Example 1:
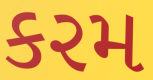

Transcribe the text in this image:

કરમ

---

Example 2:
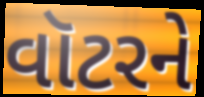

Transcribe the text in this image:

વૉટરને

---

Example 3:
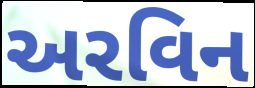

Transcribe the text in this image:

અરવિન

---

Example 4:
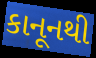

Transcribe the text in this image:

કાનૂનથી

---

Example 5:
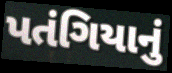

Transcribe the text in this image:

પતંગિયાનું